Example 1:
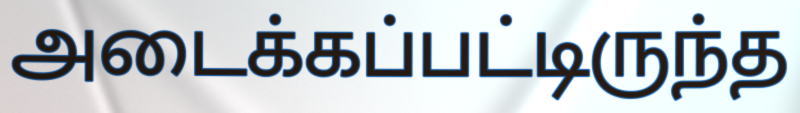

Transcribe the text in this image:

அடைக்கப்பட்டிருந்த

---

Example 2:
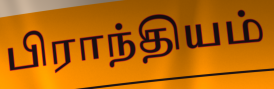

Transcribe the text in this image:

பிராந்தியம்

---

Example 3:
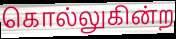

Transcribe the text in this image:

கொல்லுகின்ற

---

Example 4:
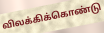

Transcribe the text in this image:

விலக்கிக்கொண்டு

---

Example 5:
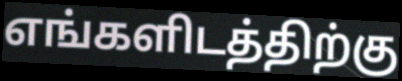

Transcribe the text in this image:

எங்களிடத்திற்கு